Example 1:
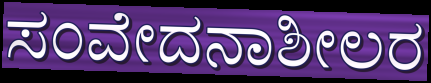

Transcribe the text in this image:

ಸಂವೇದನಾಶೀಲರ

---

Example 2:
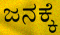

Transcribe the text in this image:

ಜನಕ್ಕೆ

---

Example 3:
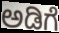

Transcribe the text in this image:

ಅಡಿಗೆ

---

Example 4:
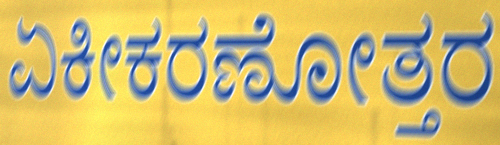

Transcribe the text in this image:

ಏಕೀಕರಣೋತ್ತರ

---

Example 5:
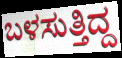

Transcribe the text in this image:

ಬಳಸುತ್ತಿದ್ದ